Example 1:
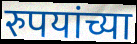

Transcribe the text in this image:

रुपयांच्या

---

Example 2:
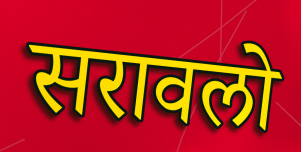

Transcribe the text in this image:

सरावलो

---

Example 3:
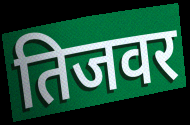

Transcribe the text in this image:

तिजवर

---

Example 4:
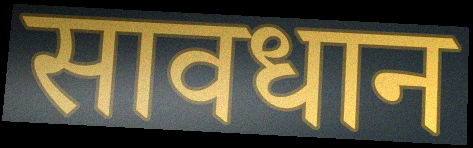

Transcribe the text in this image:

सावधान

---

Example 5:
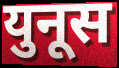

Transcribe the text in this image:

युनूस